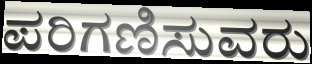
ಪರಿಗಣಿಸುವರು